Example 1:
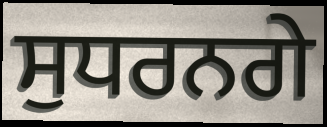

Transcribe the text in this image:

ਸੁਧਰਨਗੇ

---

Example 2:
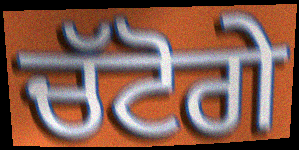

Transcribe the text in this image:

ਚੱਟੋਗੇ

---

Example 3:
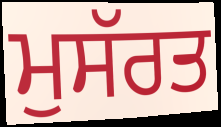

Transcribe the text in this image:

ਮੁਸੱਰਤ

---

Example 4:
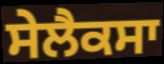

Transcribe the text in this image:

ਸੇਲੈਕਸਾ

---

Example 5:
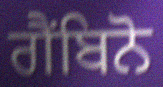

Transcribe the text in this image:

ਗੈਂਬਿਨੋ